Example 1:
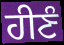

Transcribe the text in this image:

ਹੀਣੰ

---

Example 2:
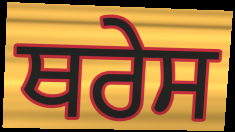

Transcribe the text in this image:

ਥਰੇਸ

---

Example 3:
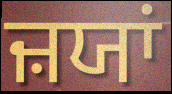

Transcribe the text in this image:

ਜ਼ਯਾਂ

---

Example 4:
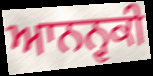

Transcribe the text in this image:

ਆਨਨ੍ਦਕੀ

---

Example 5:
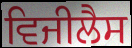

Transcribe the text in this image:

ਵਿਜੀਲੈਸ